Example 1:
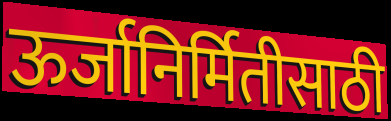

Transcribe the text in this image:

ऊर्जानिर्मितीसाठी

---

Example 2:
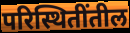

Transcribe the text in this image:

परिस्थितींतील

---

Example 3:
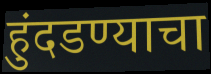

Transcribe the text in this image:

हुंदडण्याचा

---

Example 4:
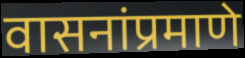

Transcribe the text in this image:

वासनांप्रमाणे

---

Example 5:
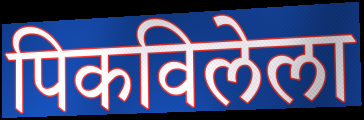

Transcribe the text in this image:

पिकविलेला